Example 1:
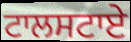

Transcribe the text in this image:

ਟਾਲਸਟਾਏ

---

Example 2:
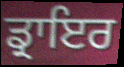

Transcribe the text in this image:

ਡ੍ਰਾਇਰ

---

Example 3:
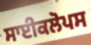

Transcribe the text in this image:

ਸਾਈਕਲੋਪਸ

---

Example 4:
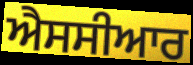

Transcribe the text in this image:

ਐਸਸੀਆਰ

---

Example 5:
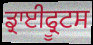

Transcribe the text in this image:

ਡ੍ਰਾਈਫ੍ਰੂਟਸ